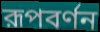
রূপবর্ণন